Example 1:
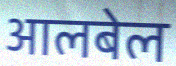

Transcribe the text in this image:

आलबेल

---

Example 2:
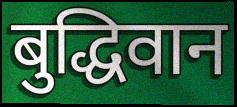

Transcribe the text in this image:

बुद्धिवान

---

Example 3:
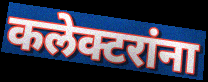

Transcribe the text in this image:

कलेक्टरांना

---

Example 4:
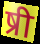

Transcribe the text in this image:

ष्री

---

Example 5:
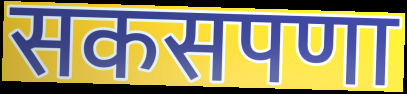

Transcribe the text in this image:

सकसपणा